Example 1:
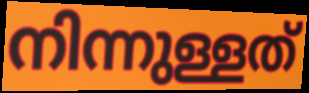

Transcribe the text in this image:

നിന്നുള്ളത്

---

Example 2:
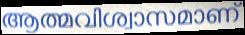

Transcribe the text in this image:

ആത്മവിശ്വാസമാണ്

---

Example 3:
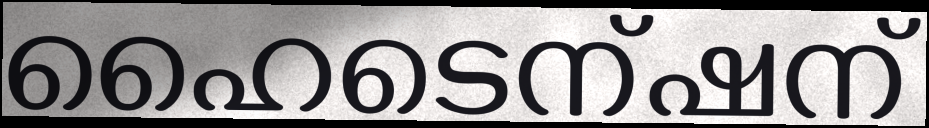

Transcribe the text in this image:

ഹൈടെന്ഷന്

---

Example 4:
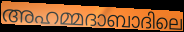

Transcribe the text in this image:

അഹമ്മദാബാദിലെ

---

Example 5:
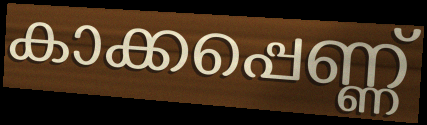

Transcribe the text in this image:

കാക്കപ്പെണ്ണ്